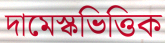
দামেস্কভিত্তিক